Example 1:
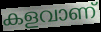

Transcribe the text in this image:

കളവാണ്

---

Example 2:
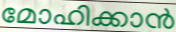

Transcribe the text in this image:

മോഹിക്കാൻ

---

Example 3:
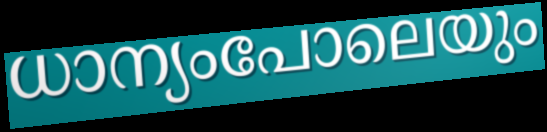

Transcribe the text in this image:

ധാന്യംപോലെയും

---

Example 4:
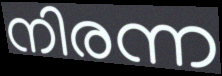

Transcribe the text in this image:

നിരന്ന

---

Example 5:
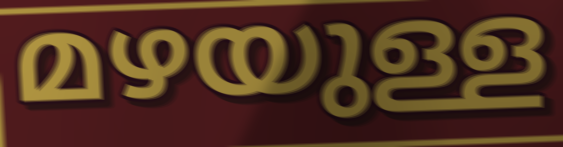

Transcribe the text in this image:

മഴയുള്ള